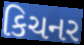
કિચનર